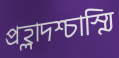
প্রহ্লাদশ্চাস্মি